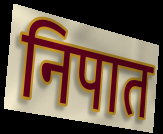
निपात